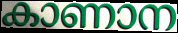
കാണാന